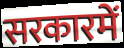
सरकारमें